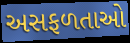
અસફળતાઓ